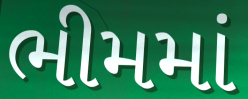
ભીમમાં